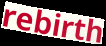
rebirth